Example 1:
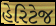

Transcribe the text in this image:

હેરિટેજ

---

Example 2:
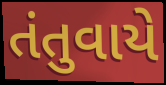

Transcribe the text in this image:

તંતુવાયે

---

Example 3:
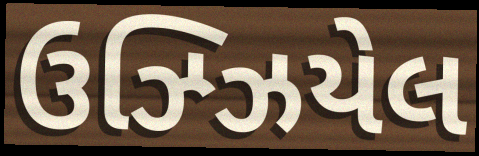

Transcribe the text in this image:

ઉઝ્ઝિયેલ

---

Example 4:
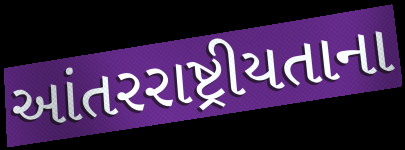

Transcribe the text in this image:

આંતરરાષ્ટ્રીયતાના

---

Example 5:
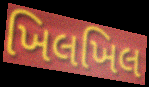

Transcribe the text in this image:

ખિલખિલ